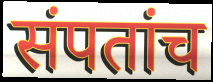
संपतांच